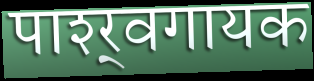
पाश्र्वगायक